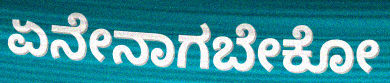
ಏನೇನಾಗಬೇಕೋ